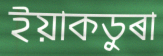
ইয়াকডুৰা